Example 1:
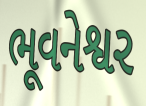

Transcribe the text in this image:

ભૂવનેશ્વર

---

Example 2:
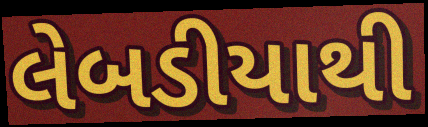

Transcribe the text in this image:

લેબડીયાથી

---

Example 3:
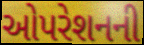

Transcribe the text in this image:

ઓપરેશનની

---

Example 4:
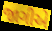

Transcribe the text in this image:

જાગીએ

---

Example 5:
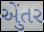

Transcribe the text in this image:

એુંતર